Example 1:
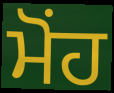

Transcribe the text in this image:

ਮੋਂਹ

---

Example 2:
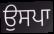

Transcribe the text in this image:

ਉਸਪਾ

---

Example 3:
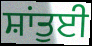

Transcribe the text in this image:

ਸ਼ਾਂਤੁਈ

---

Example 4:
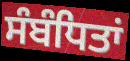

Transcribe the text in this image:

ਸੰਬੰਧਿਤਾਂ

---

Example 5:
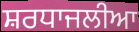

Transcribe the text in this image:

ਸ਼ਰਧਾਜਲੀਆ